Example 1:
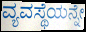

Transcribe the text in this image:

ವ್ಯವಸ್ಥೆಯನ್ನೇ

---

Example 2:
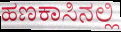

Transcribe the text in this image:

ಹಣಕಾಸಿನಲ್ಲಿ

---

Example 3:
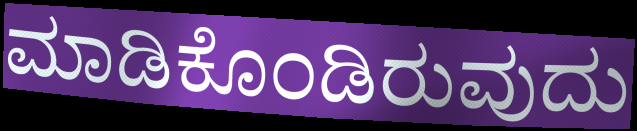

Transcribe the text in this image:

ಮಾಡಿಕೊಂಡಿರುವುದು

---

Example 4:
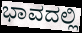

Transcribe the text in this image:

ಭಾವದಲ್ಲಿ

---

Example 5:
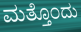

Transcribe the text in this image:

ಮತ್ತೊಂದು